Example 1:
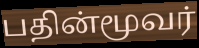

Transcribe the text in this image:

பதின்மூவர்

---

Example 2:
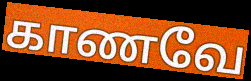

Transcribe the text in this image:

காணவே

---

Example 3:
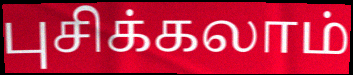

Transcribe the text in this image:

புசிக்கலாம்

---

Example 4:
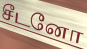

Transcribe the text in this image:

சீடனோ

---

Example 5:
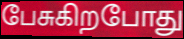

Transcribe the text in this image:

பேசுகிறபோது